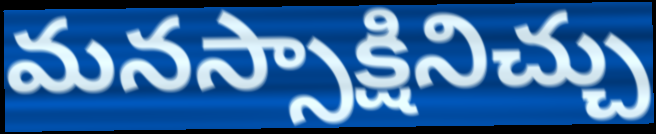
మనస్సాక్షినిచ్చు